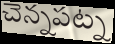
చెన్నపట్న